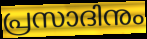
പ്രസാദിനും